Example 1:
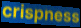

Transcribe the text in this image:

crispness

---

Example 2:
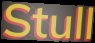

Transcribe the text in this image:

Stull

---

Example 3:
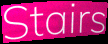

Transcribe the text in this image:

Stairs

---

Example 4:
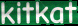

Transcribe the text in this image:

kitkat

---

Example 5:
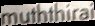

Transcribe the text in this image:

muththirai